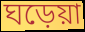
ঘড়েয়া